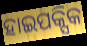
ହାଇପକ୍ସିକ